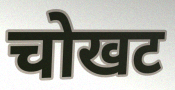
चोखट